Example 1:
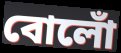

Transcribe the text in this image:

বোলোঁ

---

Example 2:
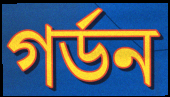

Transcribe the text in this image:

গৰ্ডন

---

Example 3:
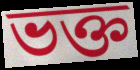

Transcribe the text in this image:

ভক্ত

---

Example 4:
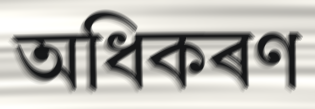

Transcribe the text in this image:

অধিকৰণ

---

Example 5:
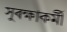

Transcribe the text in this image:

সুৰক্ষাকৰ্মী